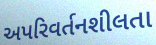
અપરિવર્તનશીલતા